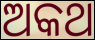
ଅକଥ